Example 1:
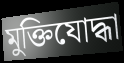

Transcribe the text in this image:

মুক্তিযোদ্ধা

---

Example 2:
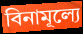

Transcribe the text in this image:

বিনামূল্যে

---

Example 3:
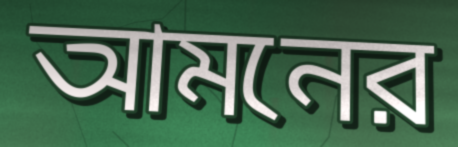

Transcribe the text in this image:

আমনের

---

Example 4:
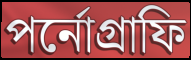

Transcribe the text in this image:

পর্নোগ্রাফি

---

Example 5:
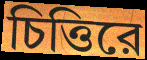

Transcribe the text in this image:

চিত্তিরে